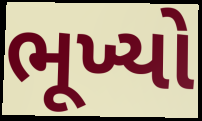
ભૂખ્યો